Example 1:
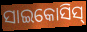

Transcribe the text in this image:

ସାଇକୋସିସ୍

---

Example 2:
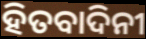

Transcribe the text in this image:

ହିତବାଦିନୀ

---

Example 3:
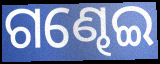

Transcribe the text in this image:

ଗଣ୍ଢେଇ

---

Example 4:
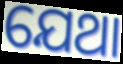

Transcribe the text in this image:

ଯେଥା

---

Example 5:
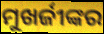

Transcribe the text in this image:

ମୁଖର୍ଜୀଙ୍କର